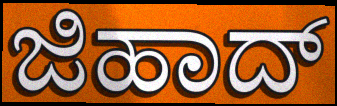
ಜಿಹಾದ್